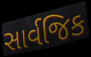
સાર્વજિક